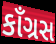
કાઁગ્રસ